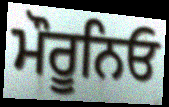
ਮੌਰੂਨਿਓ